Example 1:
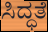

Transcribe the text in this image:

ಸಿದ್ಧತೆ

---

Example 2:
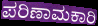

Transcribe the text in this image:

ಪರಿಣಾಮಕಾರಿ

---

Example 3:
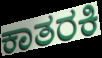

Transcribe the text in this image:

ಕಾತರಕಿ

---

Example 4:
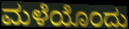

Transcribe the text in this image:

ಮಳೆಯೊಂದು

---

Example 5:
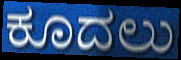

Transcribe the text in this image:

ಕೂದಲು